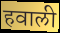
हवाली